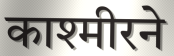
काश्मीरने